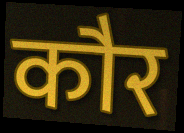
कौर